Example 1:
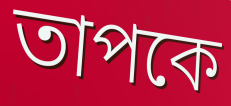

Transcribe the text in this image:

তাপকে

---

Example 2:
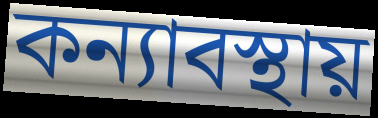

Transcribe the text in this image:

কন্যাবস্থায়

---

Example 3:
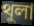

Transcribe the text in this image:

থুলা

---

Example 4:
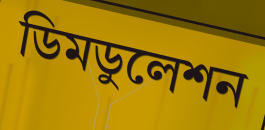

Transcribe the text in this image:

ডিমডুলেশন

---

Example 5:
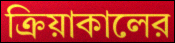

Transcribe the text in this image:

ক্রিয়াকালের